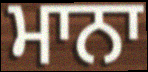
ਮਾਨਾ